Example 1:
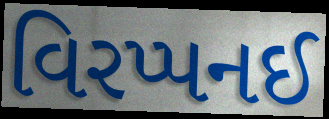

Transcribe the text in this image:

વિરપ્પનઈ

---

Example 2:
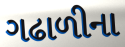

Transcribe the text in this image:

ગઢાળીના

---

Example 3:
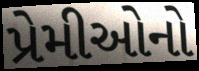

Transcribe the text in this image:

પ્રેમીઓનો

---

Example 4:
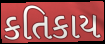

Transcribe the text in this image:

કતિકાય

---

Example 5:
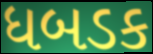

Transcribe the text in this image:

ધબડક